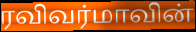
ரவிவர்மாவின்